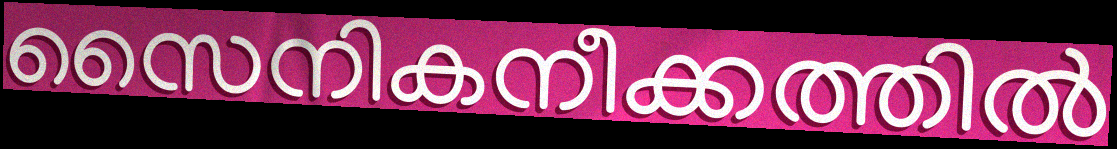
സൈനികനീക്കത്തിൽ